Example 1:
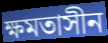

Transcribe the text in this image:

ক্ষমতাসীন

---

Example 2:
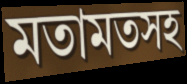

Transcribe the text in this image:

মতামতসহ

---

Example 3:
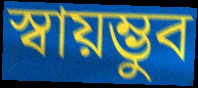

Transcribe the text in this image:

স্বায়ম্ভুব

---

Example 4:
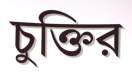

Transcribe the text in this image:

চুক্তির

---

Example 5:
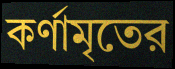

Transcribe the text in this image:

কর্ণামৃতের